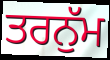
ਤਰਨੁੱਮ